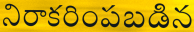
నిరాకరింపబడిన